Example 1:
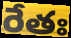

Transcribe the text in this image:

రేతః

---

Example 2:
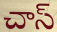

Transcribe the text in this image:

చాస్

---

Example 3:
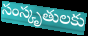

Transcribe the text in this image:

సంస్కృతులకు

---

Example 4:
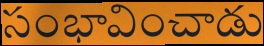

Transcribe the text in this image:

సంభావించాడు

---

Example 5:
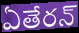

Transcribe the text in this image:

ఏతేరన్